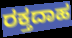
ರಕ್ತದಾಹ